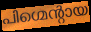
പിഗ്മെന്റായ